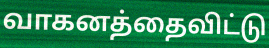
வாகனத்தைவிட்டு